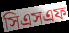
সিএসএফ